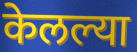
केलल्या